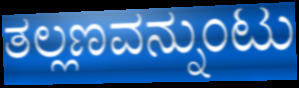
ತಲ್ಲಣವನ್ನುಂಟು